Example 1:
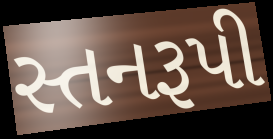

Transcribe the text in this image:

સ્તનરૂપી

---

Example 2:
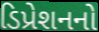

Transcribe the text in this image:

ડિપ્રેશનનો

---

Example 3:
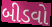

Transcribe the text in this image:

બીડવો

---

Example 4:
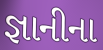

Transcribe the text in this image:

જ્ઞાનીના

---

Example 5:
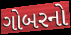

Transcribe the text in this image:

ગોબરનો